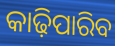
କାଢ଼ିପାରିବ